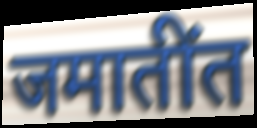
जमातींत